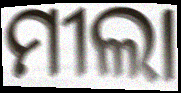
ମୀଲା